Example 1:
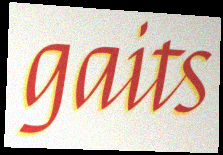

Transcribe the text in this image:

gaits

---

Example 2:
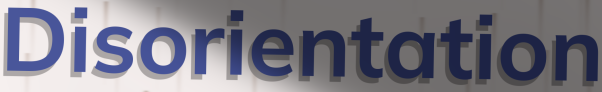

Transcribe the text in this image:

Disorientation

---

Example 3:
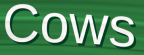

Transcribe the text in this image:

Cows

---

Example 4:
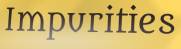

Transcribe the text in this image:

Impurities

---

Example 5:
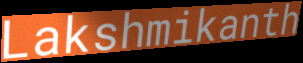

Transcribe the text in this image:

Lakshmikanth